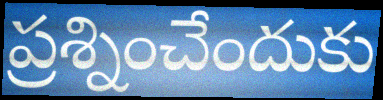
ప్రశ్నించేందుకు